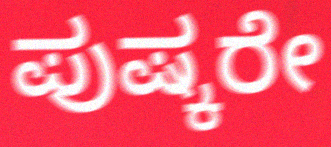
ಪುಷ್ಕರೇ